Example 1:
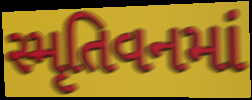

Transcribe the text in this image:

સ્મૃતિવનમાં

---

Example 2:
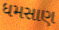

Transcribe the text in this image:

ધમસાણ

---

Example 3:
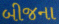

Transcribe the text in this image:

બીજના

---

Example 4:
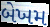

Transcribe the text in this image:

બેખમ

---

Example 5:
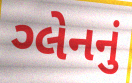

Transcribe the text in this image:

ગ્લેનનું